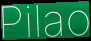
Pilao